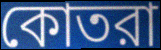
কোতরা